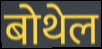
बोथेल